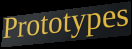
Prototypes